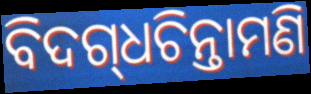
ବିଦଗ୍‌ଧଚିନ୍ତାମଣି